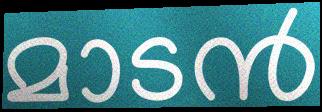
മാടൻ